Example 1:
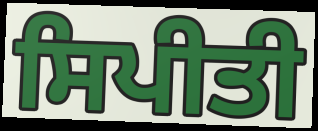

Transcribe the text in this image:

ਸਿਪੀਤੀ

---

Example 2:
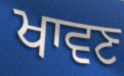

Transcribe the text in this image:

ਖਾਵਣ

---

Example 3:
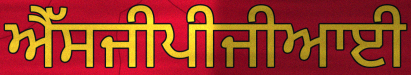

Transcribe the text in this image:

ਐੱਸਜੀਪੀਜੀਆਈ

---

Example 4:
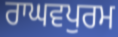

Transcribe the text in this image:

ਰਾਘਵਪੁਰਮ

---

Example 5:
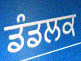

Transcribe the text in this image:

ਡੰਡਲਕ